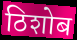
ठिशोब